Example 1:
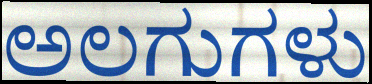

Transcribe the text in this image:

ಅಲಗುಗಳು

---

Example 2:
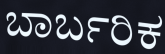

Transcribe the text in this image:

ಬಾರ್ಬರಿಕ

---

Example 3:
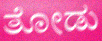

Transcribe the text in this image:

ತೋಡು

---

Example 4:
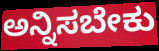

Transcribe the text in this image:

ಅನ್ನಿಸಬೇಕು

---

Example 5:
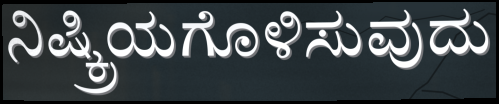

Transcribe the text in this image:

ನಿಷ್ಕ್ರಿಯಗೊಳಿಸುವುದು